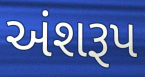
અંશરૂપ